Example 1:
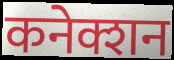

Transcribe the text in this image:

कनेक्‍शन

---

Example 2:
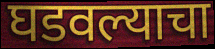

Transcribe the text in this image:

घडवल्याचा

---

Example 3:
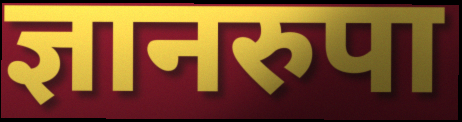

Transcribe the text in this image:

ज्ञानरुपा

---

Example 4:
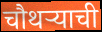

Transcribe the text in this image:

चौथऱ्याची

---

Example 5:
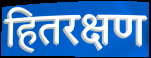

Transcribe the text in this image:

हितरक्षण